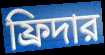
ফ্রিদার